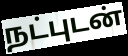
நட்புடன்